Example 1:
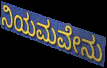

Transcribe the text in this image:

ನಿಯಮವೇನು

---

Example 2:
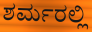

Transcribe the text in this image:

ಶರ್ಮರಲ್ಲಿ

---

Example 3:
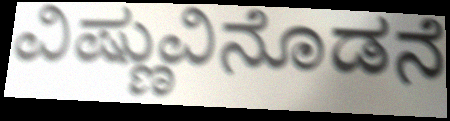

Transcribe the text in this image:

ವಿಷ್ಣುವಿನೊಡನೆ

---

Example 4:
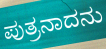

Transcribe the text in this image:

ಪುತ್ರನಾದನು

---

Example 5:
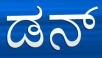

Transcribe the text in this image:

ಡನ್